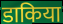
डाकिया